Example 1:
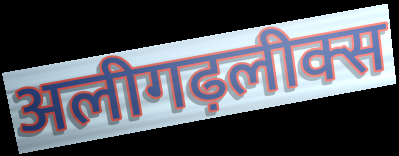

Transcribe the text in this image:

अलीगढ़लीक्स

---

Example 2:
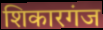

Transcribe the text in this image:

शिकारगंज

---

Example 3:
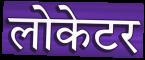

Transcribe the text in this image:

लोकेटर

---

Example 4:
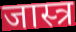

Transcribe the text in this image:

जास्त्र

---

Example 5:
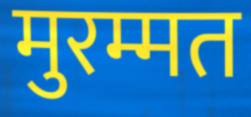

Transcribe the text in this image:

मुरम्मत